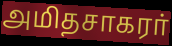
அமிதசாகரர்